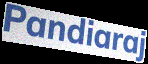
Pandiaraj